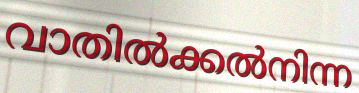
വാതിൽക്കൽനിന്ന